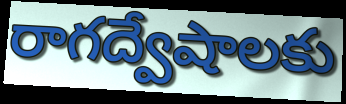
రాగద్వేషాలకు